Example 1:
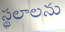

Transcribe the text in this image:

స్థలాలను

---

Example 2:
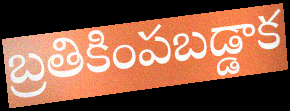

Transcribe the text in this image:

బ్రతికింపబడ్డాక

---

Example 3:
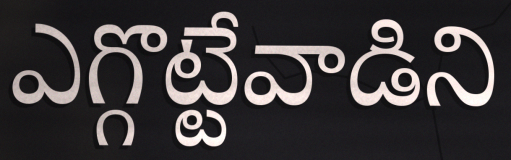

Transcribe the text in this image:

ఎగ్గొట్టేవాడిని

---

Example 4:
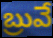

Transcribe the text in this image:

బ్రువే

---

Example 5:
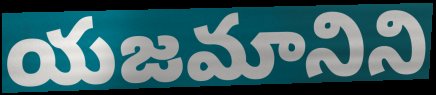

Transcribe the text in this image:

యజమానిని